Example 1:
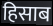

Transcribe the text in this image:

हिसाब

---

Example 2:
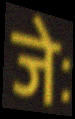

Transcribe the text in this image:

जेः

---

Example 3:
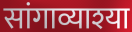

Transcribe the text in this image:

सांगाव्याश्या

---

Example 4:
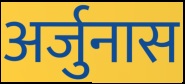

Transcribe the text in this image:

अर्जुनास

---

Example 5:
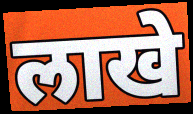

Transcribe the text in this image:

लाखे